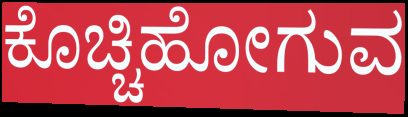
ಕೊಚ್ಚಿಹೋಗುವ